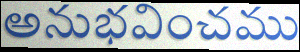
అనుభవించము